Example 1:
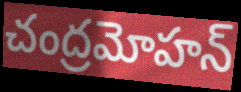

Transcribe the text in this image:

చంద్రమోహన్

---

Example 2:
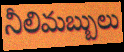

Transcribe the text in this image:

నీలిమబ్బులు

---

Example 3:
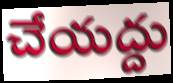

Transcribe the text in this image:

చేయద్దు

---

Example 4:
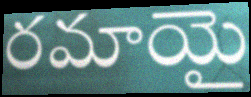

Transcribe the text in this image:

రమాయై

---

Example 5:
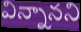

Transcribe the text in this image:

విన్నానని